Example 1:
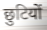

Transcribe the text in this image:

छुटियों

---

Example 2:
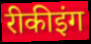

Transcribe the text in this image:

रीकीइंग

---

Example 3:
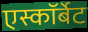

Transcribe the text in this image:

एस्कॉर्बेट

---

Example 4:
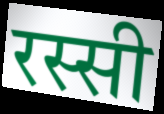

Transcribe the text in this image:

रस्‍सी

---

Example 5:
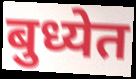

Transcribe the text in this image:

बुध्येत